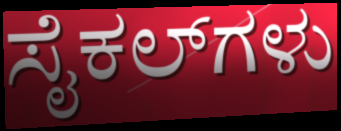
ಸೈಕಲ್‌ಗಳು